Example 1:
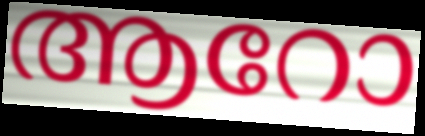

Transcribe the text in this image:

ആറോ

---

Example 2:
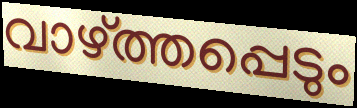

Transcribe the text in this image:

വാഴ്ത്തപ്പെടും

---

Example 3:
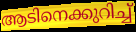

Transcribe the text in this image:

ആടിനെക്കുറിച്ച്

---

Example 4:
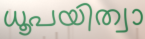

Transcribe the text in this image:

ധൂപയിത്വാ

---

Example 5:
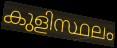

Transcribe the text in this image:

കുളിസ്ഥലം